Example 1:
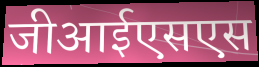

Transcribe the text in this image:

जीआईएसएस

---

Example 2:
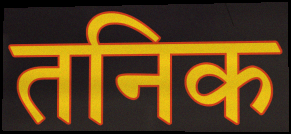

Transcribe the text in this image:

तनिक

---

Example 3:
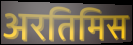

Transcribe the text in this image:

अरतिमिस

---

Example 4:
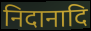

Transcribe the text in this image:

निदानादि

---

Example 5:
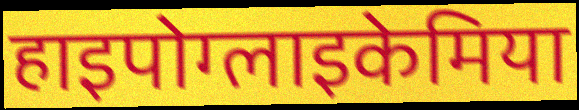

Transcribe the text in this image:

हाइपोग्लाइकेमिया